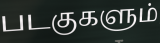
படகுகளும்